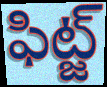
ఫిట్జ్